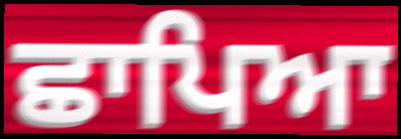
ਛਾਪਿਆ